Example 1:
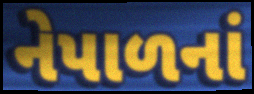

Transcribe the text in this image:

નેપાળનાં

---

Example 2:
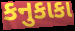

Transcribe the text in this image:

કનુકાકા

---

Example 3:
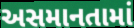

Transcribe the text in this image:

અસમાનતામાં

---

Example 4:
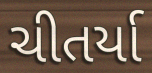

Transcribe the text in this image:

ચીતર્યા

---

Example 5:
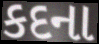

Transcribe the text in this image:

કદના